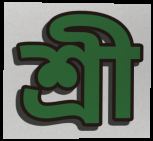
শ্রী